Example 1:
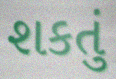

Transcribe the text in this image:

શકતું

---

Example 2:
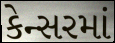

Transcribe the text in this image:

કેન્સરમાં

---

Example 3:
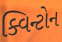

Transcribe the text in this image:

ક્વિન્ટોન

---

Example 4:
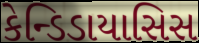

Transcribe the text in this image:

કેન્ડિડાયાસિસ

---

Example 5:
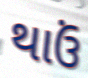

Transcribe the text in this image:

થાઉં